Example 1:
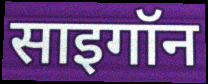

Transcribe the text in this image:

साइगॉन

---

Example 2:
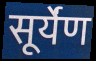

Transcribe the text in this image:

सूर्ये॑ण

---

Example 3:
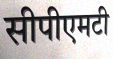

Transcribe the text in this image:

सीपीएमटी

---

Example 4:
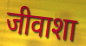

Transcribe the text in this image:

जीवाशा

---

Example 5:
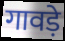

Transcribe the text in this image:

गावड़े